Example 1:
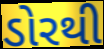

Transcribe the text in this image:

ડોરથી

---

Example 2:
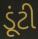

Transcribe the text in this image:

ડૂંટી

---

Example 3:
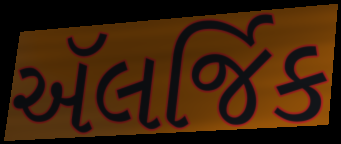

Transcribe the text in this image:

ઍલર્જિક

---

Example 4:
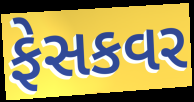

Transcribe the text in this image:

ફેસકવર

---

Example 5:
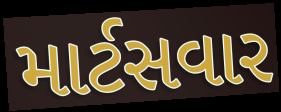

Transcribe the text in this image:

માર્ટસવાર